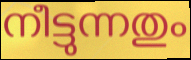
നീട്ടുന്നതും